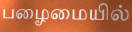
பழைமையில்